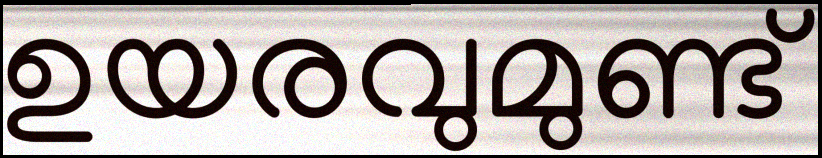
ഉയരവുമുണ്ട്